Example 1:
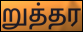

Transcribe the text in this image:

றுத்தர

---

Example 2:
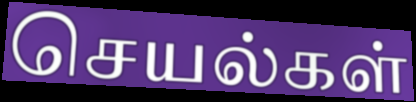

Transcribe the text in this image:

செயல்கள்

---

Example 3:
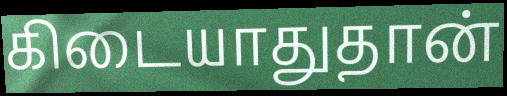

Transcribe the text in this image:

கிடையாதுதான்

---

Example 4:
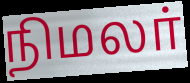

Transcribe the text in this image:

நிமலர்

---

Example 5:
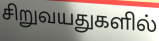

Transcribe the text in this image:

சிறுவயதுகளில்